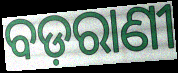
ବଡ଼ରାଣୀ